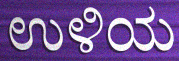
ಉಳಿಯ